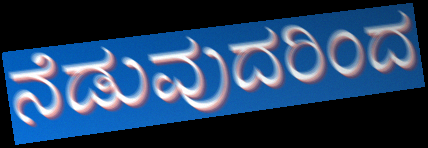
ನೆಡುವುದರಿಂದ